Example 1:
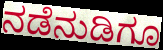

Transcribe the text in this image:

ನಡೆನುಡಿಗೂ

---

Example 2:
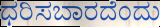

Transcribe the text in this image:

ಧರಿಸಬಾರದೆಂದು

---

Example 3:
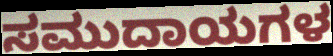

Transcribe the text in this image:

ಸಮುದಾಯಗಳ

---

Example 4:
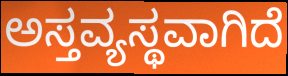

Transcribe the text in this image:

ಅಸ್ತವ್ಯಸ್ಥವಾಗಿದೆ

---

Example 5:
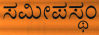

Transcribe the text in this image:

ಸಮೀಪಸ್ಥಂ